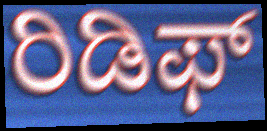
ರಿಡಿಫ್